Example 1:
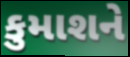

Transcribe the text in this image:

કુમાશને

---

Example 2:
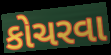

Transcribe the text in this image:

કોચરવા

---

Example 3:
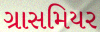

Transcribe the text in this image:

ગ્રાસમિયર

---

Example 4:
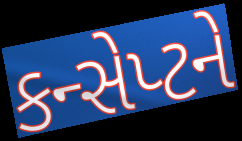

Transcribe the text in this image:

કન્સેપ્ટને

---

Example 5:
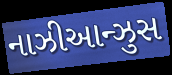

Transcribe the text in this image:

નાઝીઆન્ઝુસ